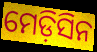
ମେଡ଼ିସିନ